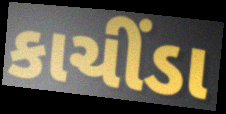
કાચીંડા